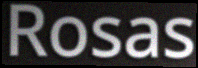
Rosas